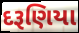
દરૂણિયા